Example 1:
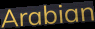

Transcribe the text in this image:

Arabian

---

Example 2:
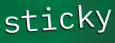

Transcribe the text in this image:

sticky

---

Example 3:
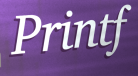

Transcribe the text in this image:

Printf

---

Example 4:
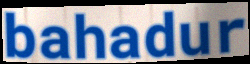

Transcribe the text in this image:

bahadur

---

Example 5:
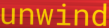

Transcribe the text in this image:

unwind